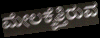
ಮೇಲಕ್ಕೆತ್ತಿರುವ